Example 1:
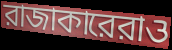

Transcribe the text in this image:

রাজাকারেরাও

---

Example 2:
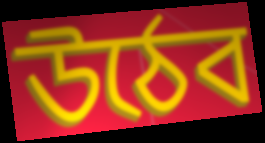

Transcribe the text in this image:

উঠেব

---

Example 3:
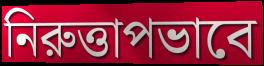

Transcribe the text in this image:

নিরুত্তাপভাবে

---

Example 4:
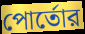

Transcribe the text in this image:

পোর্তোর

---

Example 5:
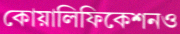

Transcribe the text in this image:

কোয়ালিফিকেশনও